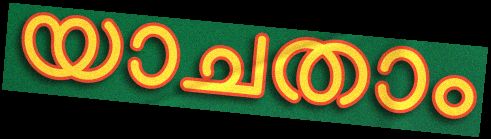
യാചതാം